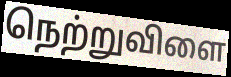
நெற்றுவிளை